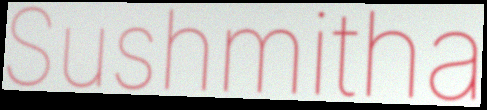
Sushmitha